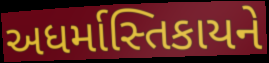
અધર્માસ્તિકાયને